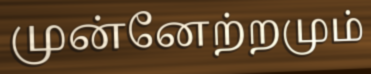
முன்னேற்றமும்